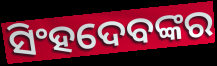
ସିଂହଦେବଙ୍କର